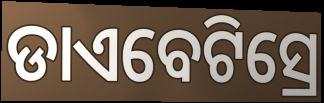
ଡାଏବେଟିସ୍ରେ